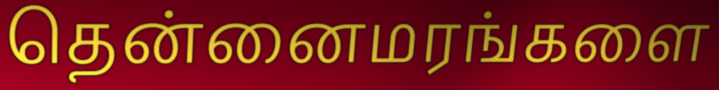
தென்னைமரங்களை